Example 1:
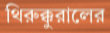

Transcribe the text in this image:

থিরুক্কুরালের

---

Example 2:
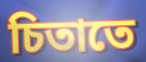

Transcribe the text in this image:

চিতাতে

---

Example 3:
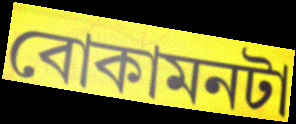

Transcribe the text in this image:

বোকামনটা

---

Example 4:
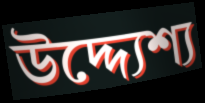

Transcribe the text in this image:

উদ্দ্যেশ্য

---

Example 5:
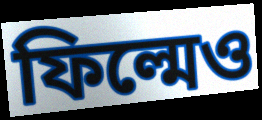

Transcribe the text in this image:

ফিল্মেও